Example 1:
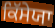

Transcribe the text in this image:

ਕਿੱਸੇਯਾ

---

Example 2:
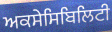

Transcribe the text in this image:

ਅਕਸੇਸਿਬਿਲਿਟੀ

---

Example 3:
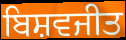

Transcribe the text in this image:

ਬਿਸ਼ਵਜੀਤ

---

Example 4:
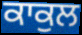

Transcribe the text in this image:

ਕਾਕੁਲ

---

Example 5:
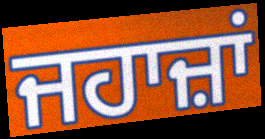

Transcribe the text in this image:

ਜਹਾਜ਼ਾਂ